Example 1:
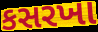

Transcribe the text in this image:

કસરખા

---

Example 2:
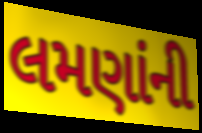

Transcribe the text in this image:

લમણાંની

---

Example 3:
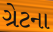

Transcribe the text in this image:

ગ્રેટના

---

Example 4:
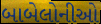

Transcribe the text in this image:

બાબેલોનીઓ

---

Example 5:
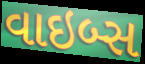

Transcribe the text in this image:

વાઇબ્સ